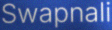
Swapnali